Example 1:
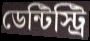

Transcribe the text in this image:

ডেন্টিস্ট্রি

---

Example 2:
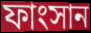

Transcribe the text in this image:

ফাংসান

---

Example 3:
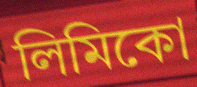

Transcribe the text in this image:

লিমিকো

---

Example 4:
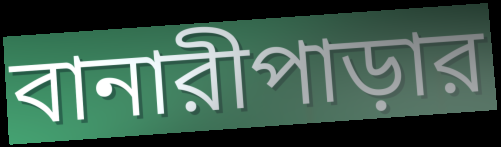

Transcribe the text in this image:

বানারীপাড়ার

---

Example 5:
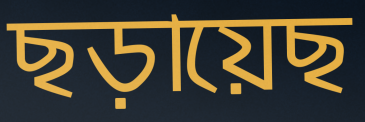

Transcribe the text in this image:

ছড়ায়েছ